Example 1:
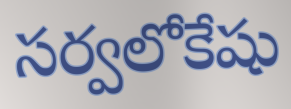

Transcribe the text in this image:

సర్వలోకేషు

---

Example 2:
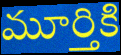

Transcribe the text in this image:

మూర్తికి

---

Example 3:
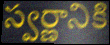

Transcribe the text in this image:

స్వర్ణానికి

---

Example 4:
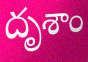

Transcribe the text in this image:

దృశాం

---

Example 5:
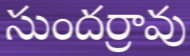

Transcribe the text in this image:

సుందర్రావు